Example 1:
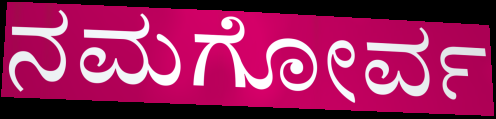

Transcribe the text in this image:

ನಮಗೋರ್ವ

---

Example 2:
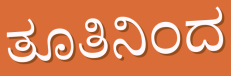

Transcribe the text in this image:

ತೂತಿನಿಂದ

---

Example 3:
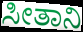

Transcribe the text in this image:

ಸೀತಾನಿ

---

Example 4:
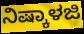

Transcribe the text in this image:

ನಿಷ್ಕಾಳಜಿ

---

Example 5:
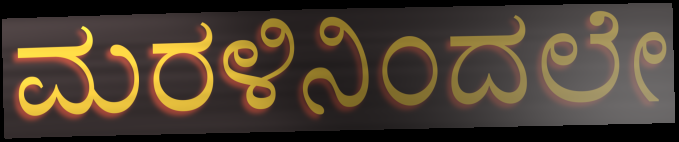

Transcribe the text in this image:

ಮರಳಿನಿಂದಲೇ